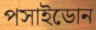
পসাইডোন